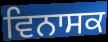
ਵਿਨਾਸਕ